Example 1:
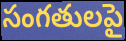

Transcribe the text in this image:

సంగతులపై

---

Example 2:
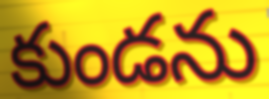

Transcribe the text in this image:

కుండను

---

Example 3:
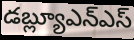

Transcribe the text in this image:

డబ్ల్యూఎన్ఎస్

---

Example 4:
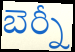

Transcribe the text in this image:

బెర్నీ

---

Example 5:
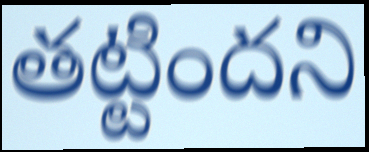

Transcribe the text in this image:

తట్టిందని